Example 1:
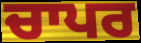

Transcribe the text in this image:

ਚਾਪਰ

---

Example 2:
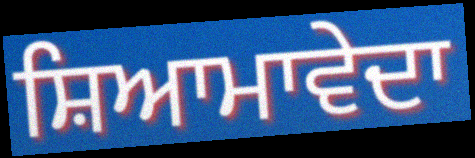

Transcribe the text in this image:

ਸ਼ਿਆਮਾਵੇਦਾ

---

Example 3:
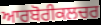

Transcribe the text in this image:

ਆਰਬੋਰੀਕਲਚਰ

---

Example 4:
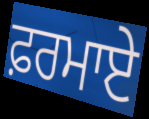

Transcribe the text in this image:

ਫ਼ਰਮਾਏ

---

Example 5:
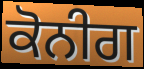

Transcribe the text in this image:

ਕੋਨੀਗ